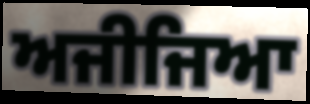
ਅਜੀਜਿਆ